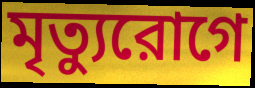
মৃত্যুরোগে